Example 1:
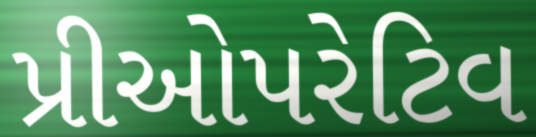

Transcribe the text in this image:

પ્રીઓપરેટિવ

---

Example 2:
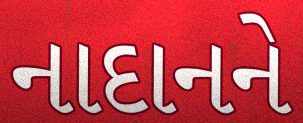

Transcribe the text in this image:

નાદાનને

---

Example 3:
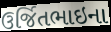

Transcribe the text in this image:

ઉર્જિતભાઇના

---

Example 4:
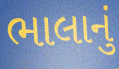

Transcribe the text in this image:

ભાલાનું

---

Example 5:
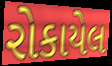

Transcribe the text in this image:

રોકાયેલ